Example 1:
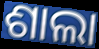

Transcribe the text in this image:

ଶାଲା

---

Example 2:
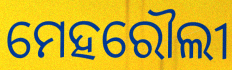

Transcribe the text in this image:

ମେହରୌଲୀ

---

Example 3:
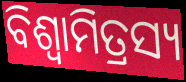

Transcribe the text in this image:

ବିଶ୍ଵାମିତ୍ରସ୍ୟ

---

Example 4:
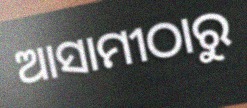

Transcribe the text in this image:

ଆସାମୀଠାରୁ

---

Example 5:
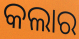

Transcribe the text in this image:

କଲାର